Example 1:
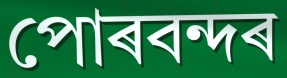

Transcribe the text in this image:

পোৰবন্দৰ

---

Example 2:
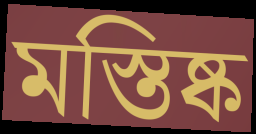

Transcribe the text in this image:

মস্তিষ্ক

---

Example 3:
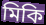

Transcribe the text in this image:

মিকি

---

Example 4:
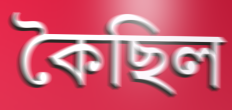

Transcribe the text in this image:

কৈছিল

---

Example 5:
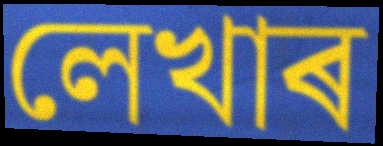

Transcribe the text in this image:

লেখাৰ